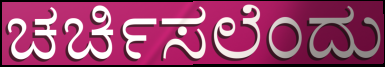
ಚರ್ಚಿಸಲೆಂದು